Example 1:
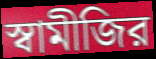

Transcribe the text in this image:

স্বামীজির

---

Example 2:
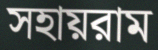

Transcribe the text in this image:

সহায়রাম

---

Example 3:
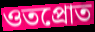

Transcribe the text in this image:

ওতপ্রোত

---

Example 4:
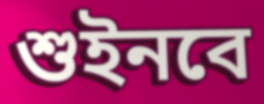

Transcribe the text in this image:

শুইনবে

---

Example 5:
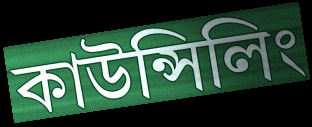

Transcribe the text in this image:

কাউন্সিলিং